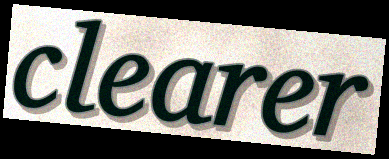
clearer